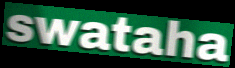
swataha